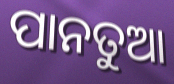
ପାନତୁଆ